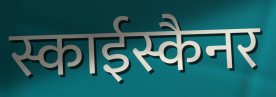
स्काईस्कैनर